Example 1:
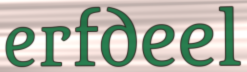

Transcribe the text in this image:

erfdeel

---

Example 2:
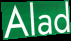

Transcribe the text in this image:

Alad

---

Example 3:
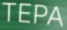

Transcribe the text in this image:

TEPA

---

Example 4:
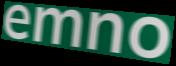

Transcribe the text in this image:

emno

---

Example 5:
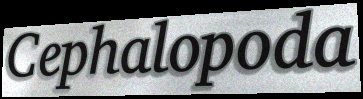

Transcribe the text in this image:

Cephalopoda